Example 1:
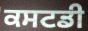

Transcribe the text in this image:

ਕਸਟਡੀ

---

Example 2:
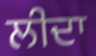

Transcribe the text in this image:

ਲੀਦਾ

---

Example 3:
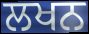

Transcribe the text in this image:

ਲਖਨ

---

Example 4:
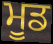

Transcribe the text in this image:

ਮੂਡ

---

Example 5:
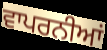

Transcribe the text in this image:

ਵਾਪਰਨੀਆਂ